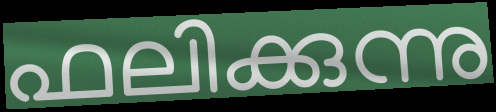
ഫലിക്കുന്നു